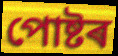
পোষ্টৰ